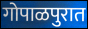
गोपाळपुरात